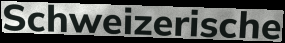
Schweizerische